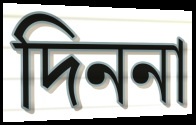
দিননা